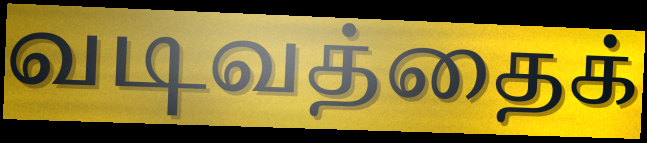
வடிவத்தைக்